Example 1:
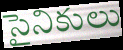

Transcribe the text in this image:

సైనికులు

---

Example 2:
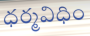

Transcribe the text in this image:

ధర్మవిధిం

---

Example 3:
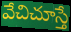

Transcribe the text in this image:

వేచిచూస్తే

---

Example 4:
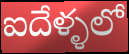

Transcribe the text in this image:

ఐదేళ్ళలో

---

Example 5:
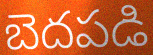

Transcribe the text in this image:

బెదపడి